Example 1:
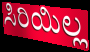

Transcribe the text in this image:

ಸಿರಿಯಿಲ್ಲ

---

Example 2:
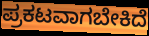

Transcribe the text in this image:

ಪ್ರಕಟವಾಗಬೇಕಿದೆ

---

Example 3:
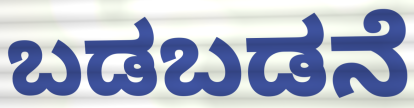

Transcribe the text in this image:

ಬಡಬಡನೆ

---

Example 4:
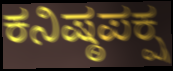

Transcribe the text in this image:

ಕನಿಷ್ಠಪಕ್ಷ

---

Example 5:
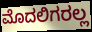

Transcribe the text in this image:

ಮೊದಲಿಗರಲ್ಲ